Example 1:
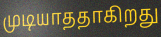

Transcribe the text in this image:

முடியாததாகிறது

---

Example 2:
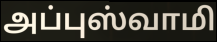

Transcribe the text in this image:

அப்புஸ்வாமி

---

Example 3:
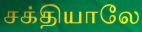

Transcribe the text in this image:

சக்தியாலே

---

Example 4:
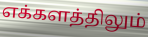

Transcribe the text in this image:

எக்களத்திலும்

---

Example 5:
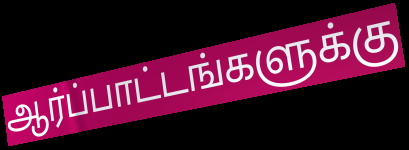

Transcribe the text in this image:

ஆர்ப்பாட்டங்களுக்கு